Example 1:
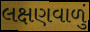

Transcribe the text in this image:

લક્ષણવાળું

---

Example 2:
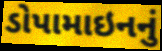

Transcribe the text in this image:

ડોપામાઇનનું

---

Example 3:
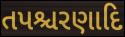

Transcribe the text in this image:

તપશ્ચરણાદિ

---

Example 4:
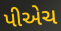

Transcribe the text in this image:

પીએચ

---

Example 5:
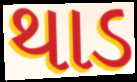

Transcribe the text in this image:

થાડ